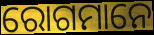
ରୋଗମାନେ